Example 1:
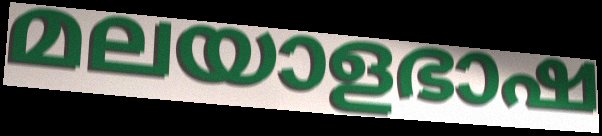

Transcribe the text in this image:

മലയാളഭാഷ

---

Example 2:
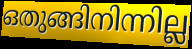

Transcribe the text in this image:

ഒതുങ്ങിനിന്നില്ല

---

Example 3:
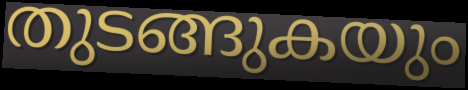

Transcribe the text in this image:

തുടങ്ങുകയും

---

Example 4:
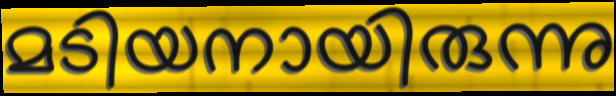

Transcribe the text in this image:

മടിയനായിരുന്നു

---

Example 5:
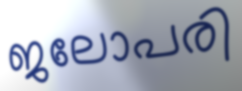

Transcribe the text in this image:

ജലോപരി